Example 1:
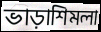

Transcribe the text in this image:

ভাড়াশিমলা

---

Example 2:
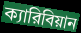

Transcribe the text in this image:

ক্যারিবিয়ান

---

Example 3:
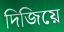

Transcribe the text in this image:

দিজিয়ে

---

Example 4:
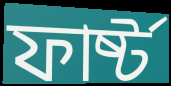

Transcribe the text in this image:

ফার্ষ্ট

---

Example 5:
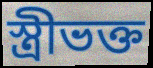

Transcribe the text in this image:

স্ত্রীভক্ত